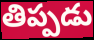
తిప్పడు